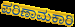
ಪರಿಣಾಮಕಾರಿ